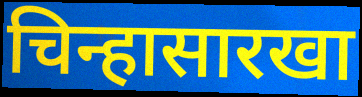
चिन्हासारखा